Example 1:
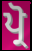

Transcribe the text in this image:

ਪ੍ਰੋ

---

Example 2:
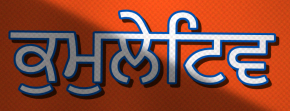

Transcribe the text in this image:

ਕੁਮੁਲੇਟਿਵ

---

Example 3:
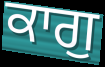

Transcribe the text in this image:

ਕਾਗੁ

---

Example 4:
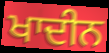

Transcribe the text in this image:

ਖਾਦੀਨ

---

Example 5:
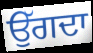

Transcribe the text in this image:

ਉੱਗਦਾ